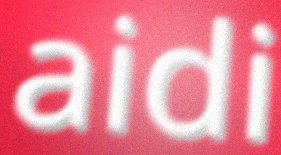
aidi